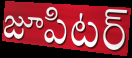
జూపిటర్